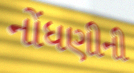
નોંધણીની